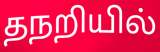
தநறியில்